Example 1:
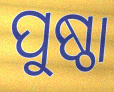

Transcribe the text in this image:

ପୁଷ୍ଠା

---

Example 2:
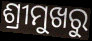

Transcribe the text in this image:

ଶ୍ରୀମୁଖରୁ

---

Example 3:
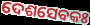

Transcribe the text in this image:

ଦେଶସେବକଃ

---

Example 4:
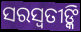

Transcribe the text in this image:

ସରସ୍ୱତୀଙ୍କି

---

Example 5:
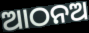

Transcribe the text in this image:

ଆଠନଅ